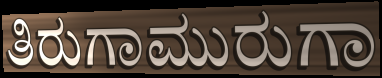
ತಿರುಗಾಮುರುಗಾ